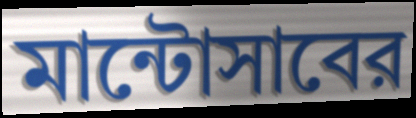
মান্টোসাবের